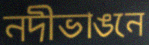
নদীভাঙনে